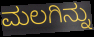
ಮಲಗಿನ್ನು